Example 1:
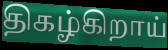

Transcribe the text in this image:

திகழ்கிறாய்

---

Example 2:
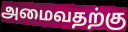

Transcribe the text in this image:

அமைவதற்கு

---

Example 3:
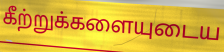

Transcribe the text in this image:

கீற்றுக்களையுடைய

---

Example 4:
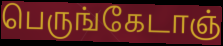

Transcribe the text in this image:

பெருங்கேடாஞ்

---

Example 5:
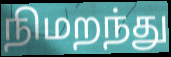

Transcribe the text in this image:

நிமறந்து